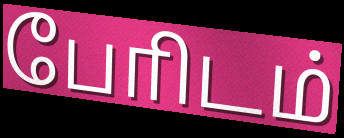
பேரிடம்